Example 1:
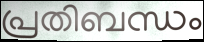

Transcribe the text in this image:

പ്രതിബന്ധം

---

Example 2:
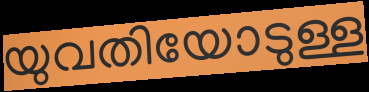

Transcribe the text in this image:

യുവതിയോടുള്ള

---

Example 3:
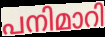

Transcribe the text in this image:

പനിമാറി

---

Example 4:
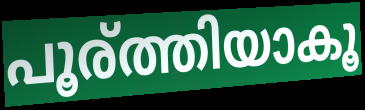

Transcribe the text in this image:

പൂര്ത്തിയാകൂ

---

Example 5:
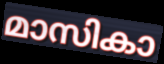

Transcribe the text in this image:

മാസികാ